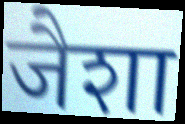
जैशा